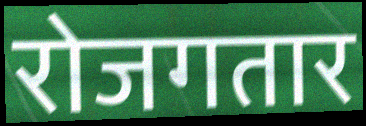
रोजगतार